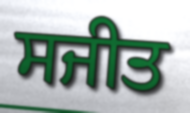
ਸਜੀਤ